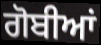
ਗੋਬੀਆਂ